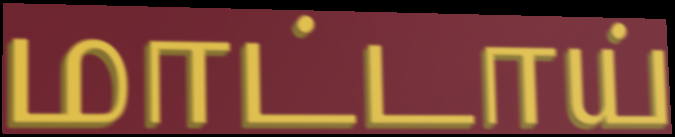
மாட்டாய்